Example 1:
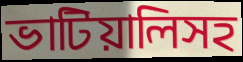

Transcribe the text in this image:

ভাটিয়ালিসহ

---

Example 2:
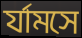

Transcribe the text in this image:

র্যামসে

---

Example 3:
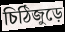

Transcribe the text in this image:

চিঠিজুড়ে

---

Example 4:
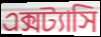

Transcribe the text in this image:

এক্সট্যাসি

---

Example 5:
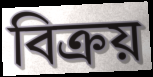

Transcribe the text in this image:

বিক্রয়